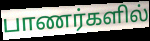
பாணர்களில்